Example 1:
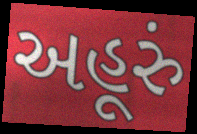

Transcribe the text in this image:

અહૂરું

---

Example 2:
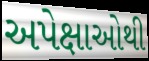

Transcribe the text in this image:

અપેક્ષાઓથી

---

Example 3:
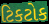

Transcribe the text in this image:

ટિકટોક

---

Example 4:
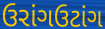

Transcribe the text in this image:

ઉરાંગઉટાંગ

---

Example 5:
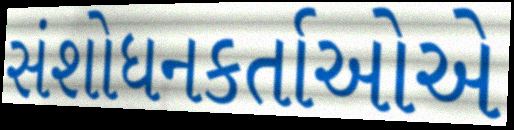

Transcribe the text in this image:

સંશોધનકર્તાઓએ